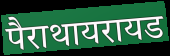
पैराथायरायड